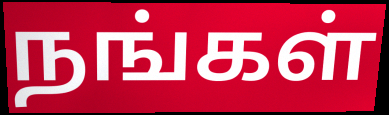
நங்கள்